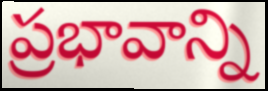
ప్రభావాన్ని